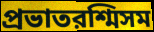
প্রভাতরশ্মিসম